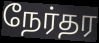
நேர்தர